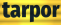
tarpor